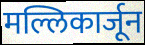
मल्लिकार्जून